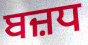
ਬਜ਼ਧ